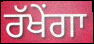
ਰੱਖੇਂਗਾ